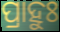
ପ୍ରାହୁଃ